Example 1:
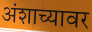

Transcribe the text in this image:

अंशाच्यावर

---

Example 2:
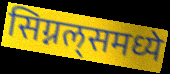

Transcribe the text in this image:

सिग्नल्समध्ये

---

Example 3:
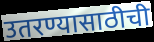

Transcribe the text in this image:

उतरण्यासाठीची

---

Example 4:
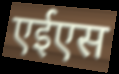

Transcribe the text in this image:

एईएस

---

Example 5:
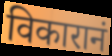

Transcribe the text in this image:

विकारानं